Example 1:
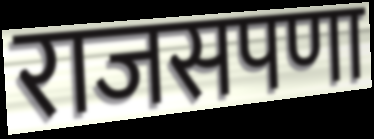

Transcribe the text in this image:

राजसपणा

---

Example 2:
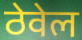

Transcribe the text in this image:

ठेवेल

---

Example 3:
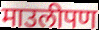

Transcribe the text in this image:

माउलीपण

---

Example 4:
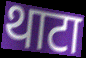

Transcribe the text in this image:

थाटा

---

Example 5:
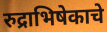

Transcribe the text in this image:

रुद्राभिषेकाचे